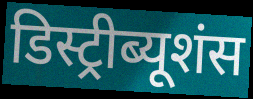
डिस्ट्रीब्यूशंस